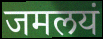
जमलयं